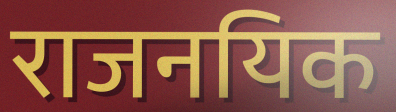
राजनयिक